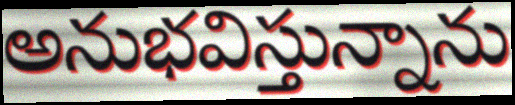
అనుభవిస్తున్నాను